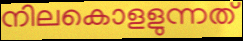
നിലകൊളളുന്നത്